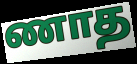
ணாத